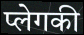
प्लेगकी